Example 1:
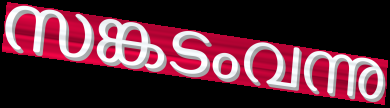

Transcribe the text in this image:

സങ്കടംവന്നു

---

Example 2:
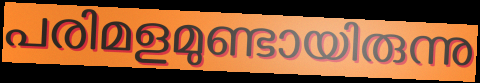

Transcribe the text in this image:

പരിമളമുണ്ടായിരുന്നു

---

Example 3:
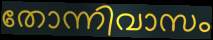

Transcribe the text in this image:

തോന്നിവാസം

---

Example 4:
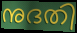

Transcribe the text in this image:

നുദതി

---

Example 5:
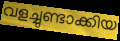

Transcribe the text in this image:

വളച്ചുണ്ടാക്കിയ